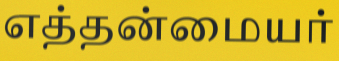
எத்தன்மையர்